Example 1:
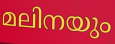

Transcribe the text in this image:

മലിനയും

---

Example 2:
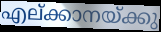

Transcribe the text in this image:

എല്ക്കാനയ്ക്കു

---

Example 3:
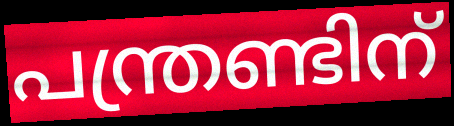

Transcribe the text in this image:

പന്ത്രണ്ടിന്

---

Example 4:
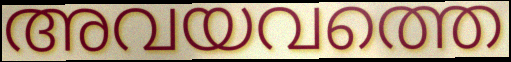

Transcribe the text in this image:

അവയവത്തെ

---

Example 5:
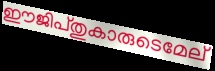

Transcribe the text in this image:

ഈജിപ്തുകാരുടെമേല്